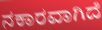
ನಕಾರವಾಗಿದೆ